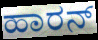
ಹಾರನ್